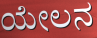
ಯೇಲನ